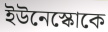
ইউনেস্কোকে